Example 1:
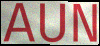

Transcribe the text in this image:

AUN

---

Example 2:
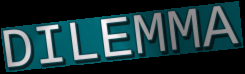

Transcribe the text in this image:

DILEMMA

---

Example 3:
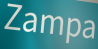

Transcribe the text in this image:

Zampa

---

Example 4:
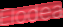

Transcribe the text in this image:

Elodea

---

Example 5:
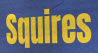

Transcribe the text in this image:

Squires